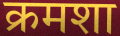
क्रमशा